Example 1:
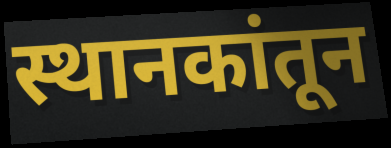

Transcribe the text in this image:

स्थानकांतून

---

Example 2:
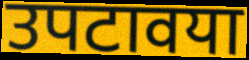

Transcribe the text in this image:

उपटावया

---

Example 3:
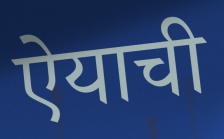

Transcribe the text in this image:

ऐयाची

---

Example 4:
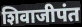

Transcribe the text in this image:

शिवाजीपंत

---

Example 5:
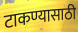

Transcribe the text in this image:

टाकण्यासाठी